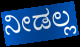
ನೀಡಲ್ಲ